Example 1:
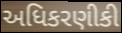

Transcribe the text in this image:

અધિકરણીકી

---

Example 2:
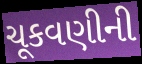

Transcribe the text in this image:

ચૂકવણીની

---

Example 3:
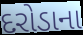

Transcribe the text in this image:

દરોડાના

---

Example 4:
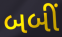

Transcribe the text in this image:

બબીં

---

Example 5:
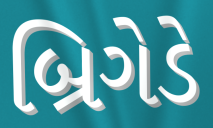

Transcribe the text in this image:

બ્રિગેડે